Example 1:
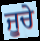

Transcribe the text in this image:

ਜੂਚੇ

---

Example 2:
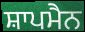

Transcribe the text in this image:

ਸ਼ਾਪਮੈਨ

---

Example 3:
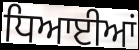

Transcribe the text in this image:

ਧਿਆਈਆਂ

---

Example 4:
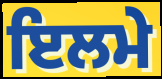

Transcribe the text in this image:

ਇਲਮੇ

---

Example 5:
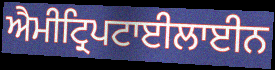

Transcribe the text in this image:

ਐਮੀਟ੍ਰਿਪਟਾਈਲਾਈਨ